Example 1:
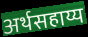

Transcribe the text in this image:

अर्थसहाय्य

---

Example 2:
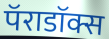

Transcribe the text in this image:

पॅराडॉक्स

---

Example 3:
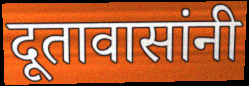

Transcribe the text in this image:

दूतावासांनी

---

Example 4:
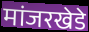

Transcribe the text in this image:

मांजरखेडे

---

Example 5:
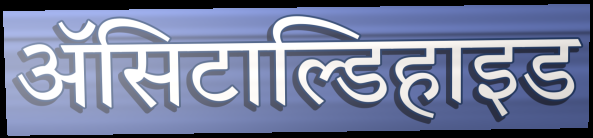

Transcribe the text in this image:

ॲसिटाल्डिहाइड